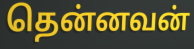
தென்னவன்